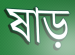
ষাড়